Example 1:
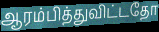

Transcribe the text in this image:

ஆரம்பித்துவிட்டதோ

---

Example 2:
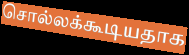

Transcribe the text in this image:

சொல்லக்கூடியதாக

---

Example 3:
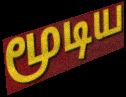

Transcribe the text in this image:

மூடிய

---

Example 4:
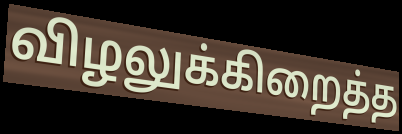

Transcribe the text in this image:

விழலுக்கிறைத்த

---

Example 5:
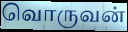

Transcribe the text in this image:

வொருவன்